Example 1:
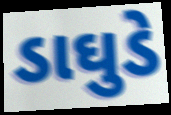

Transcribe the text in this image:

ડાઘુડે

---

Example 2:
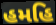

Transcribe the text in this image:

હમહિ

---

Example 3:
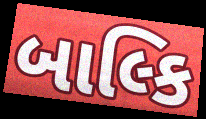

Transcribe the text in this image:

બાલ્કિ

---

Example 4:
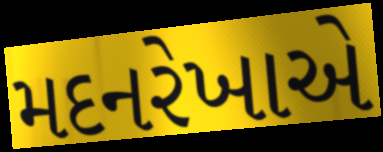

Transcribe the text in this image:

મદનરેખાએ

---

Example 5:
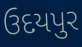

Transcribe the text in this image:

ઉદયપુર